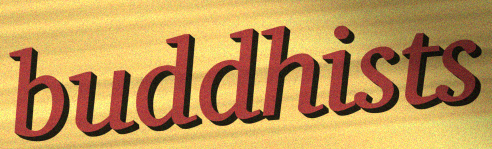
buddhists